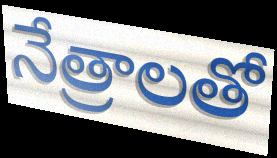
నేత్రాలతో